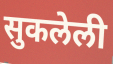
सुकलेली